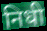
निधी